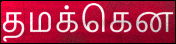
தமக்கென